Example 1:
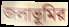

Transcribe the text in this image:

জলাভূমির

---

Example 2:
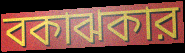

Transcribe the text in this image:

বকাঝকার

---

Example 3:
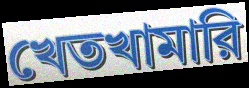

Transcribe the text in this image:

খেতখামারি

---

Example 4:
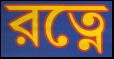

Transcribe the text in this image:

রত্নে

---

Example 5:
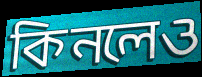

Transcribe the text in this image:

কিনলেও